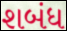
શબંધ